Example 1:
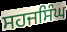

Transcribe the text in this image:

ਸਹਜਸਿੰਘ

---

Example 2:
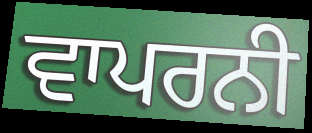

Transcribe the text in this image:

ਵਾਪਰਨੀ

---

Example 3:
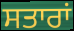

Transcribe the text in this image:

ਸਤਾਰਾਂ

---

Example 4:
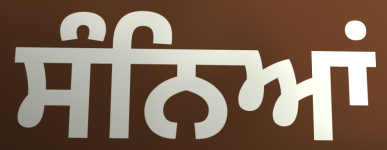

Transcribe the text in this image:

ਸੰਨਿਆਂ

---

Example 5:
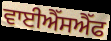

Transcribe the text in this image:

ਵਾਈਐੱਸਐੱਫ